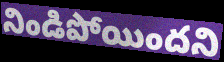
నిండిపోయిందని